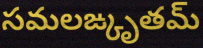
సమలఙ్కృతమ్